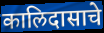
कालिदासाचे